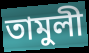
তামুলী